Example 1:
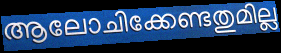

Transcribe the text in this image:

ആലോചിക്കേണ്ടതുമില്ല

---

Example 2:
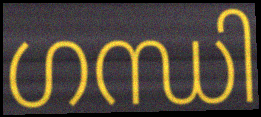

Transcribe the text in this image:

ഗന്ധി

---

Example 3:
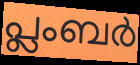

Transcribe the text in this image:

പ്ലംബർ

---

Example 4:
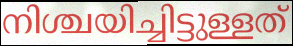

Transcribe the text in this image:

നിശ്ചയിച്ചിട്ടുള്ളത്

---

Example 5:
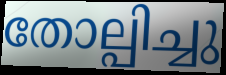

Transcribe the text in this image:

തോല്പിച്ചു